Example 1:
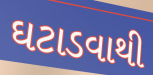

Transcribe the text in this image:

ઘટાડવાથી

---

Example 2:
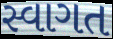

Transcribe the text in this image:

સ્વાગત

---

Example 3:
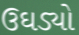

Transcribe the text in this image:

ઉઘડ્યો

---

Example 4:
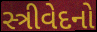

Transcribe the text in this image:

સ્ત્રીવેદનો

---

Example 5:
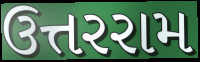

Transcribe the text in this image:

ઉત્તરરામ